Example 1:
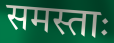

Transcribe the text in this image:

समस्ताः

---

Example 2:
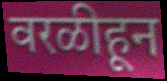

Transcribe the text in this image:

वरळीहून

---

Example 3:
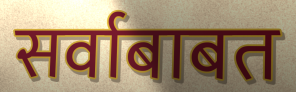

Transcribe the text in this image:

सर्वाबाबत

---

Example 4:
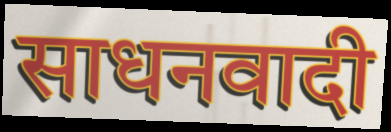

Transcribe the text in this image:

साधनवादी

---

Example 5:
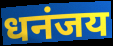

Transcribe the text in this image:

धनंजय